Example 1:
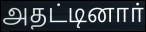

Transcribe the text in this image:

அதட்டினார்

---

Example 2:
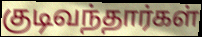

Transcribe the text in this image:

குடிவந்தார்கள்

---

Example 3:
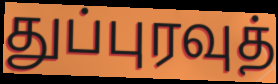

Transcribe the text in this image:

துப்புரவுத்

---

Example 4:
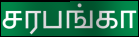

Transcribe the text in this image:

சரபங்கா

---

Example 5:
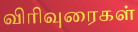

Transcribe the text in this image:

விரிவுரைகள்